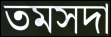
তমসদা